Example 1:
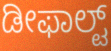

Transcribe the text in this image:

ಡೀಫಾಲ್ಟ್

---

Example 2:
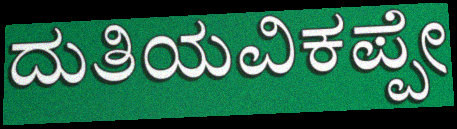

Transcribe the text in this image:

ದುತಿಯವಿಕಪ್ಪೇ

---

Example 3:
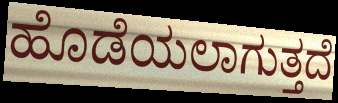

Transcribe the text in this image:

ಹೊಡೆಯಲಾಗುತ್ತದೆ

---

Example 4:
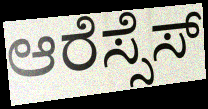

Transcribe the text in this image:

ಆರೆಸ್ಸೆಸ್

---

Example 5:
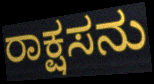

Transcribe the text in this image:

ರಾಕ್ಷಸನು